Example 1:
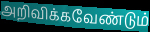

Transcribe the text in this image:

அறிவிக்கவேண்டும்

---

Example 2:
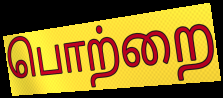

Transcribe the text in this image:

பொற்றை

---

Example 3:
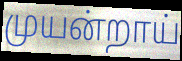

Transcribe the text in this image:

முயன்றாய்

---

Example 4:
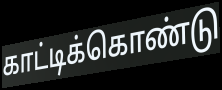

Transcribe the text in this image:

காட்டிக்கொண்டு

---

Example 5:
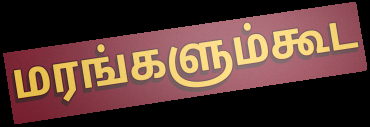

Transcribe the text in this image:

மரங்களும்கூட